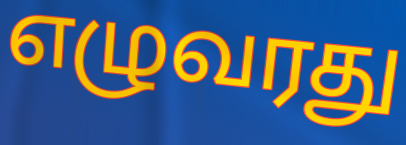
எழுவரது